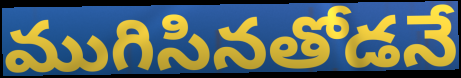
ముగిసినతోడనే